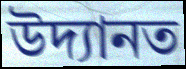
উদ্যানত